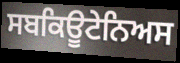
ਸਬਕਿਊਟੇਨਿਅਸ